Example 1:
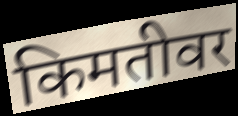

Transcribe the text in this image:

किमतीवर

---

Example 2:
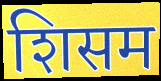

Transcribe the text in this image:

शिसम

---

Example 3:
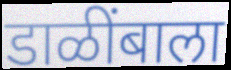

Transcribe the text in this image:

डाळींबाला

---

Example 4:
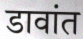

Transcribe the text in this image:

डावांत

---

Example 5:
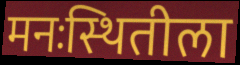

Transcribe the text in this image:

मनःस्थितीला